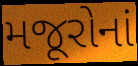
મજૂરોનાં